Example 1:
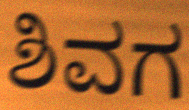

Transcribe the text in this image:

ಶಿವಗ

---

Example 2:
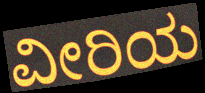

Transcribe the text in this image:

ವೀರಿಯ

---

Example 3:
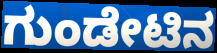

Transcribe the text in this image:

ಗುಂಡೇಟಿನ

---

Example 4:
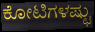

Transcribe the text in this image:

ಕೋಟಿಗಳಷ್ಟು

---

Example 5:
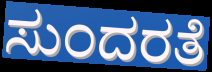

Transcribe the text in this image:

ಸುಂದರತೆ